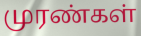
முரண்கள்